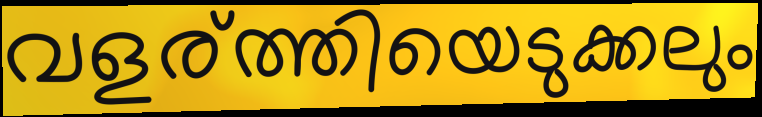
വളര്ത്തിയെടുക്കലും